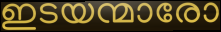
ഇടയന്മാരോ